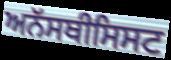
ਅਨੱਸਥੀਸਿਸਟ